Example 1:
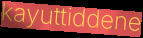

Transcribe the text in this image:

kayuttiddene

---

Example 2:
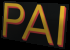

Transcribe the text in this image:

PAI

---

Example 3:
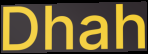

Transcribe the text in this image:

Dhah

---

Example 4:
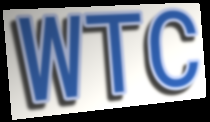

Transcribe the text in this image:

WTC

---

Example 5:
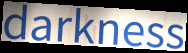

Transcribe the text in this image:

darkness